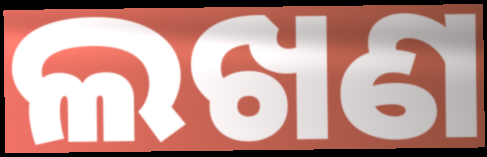
ଲଖଣ